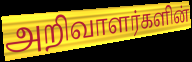
அறிவாளர்களின்